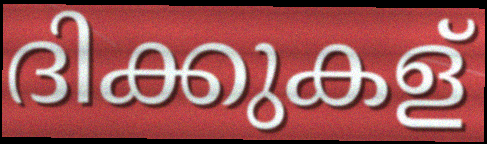
ദിക്കുകള്